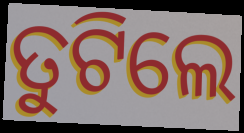
ତୁଟିଲେ